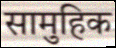
सामुहिक